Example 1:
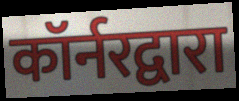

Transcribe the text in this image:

कॉर्नरद्वारा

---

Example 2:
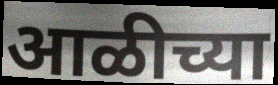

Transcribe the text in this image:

आळीच्या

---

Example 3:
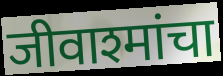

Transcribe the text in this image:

जीवाश्मांचा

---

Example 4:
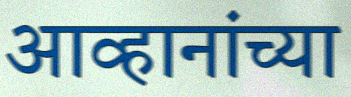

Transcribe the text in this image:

आव्हानांच्या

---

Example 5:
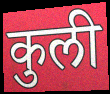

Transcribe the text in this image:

कुली